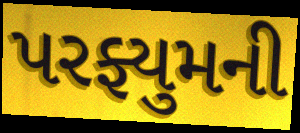
પરફ્યુમની